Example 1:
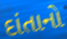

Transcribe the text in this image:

દાંતાનો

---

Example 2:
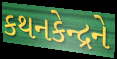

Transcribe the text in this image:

કથનકેન્દ્રને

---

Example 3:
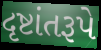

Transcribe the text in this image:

દૃષ્ટાંતરૂપે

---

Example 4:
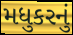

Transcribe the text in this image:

મધુકરનું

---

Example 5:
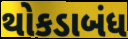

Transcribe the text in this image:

થોકડાબંધ